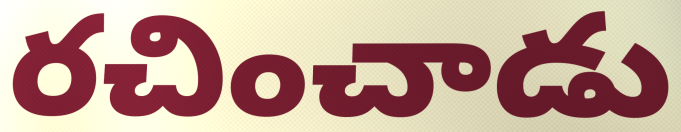
రచించాడు